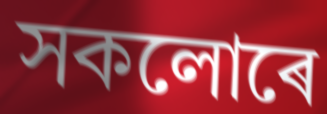
সকলোৰে